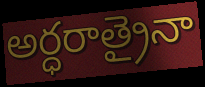
అర్ధరాత్రైనా